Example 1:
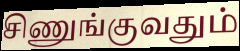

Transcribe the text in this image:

சிணுங்குவதும்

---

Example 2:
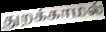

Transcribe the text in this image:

துறக்காமல்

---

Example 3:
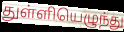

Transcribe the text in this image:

துள்ளியெழுந்து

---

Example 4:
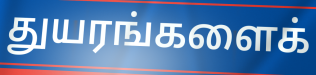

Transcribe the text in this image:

துயரங்களைக்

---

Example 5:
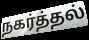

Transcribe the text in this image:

நகர்த்தல்